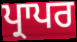
ਪ੍ਰਾਪਰ